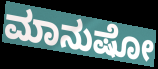
ಮಾನುಷೋ